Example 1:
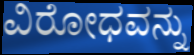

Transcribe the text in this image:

ವಿರೋಧವನ್ನು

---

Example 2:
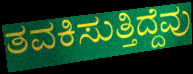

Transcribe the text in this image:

ತವಕಿಸುತ್ತಿದ್ದೆವು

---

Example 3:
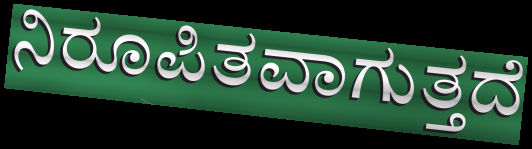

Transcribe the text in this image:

ನಿರೂಪಿತವಾಗುತ್ತದೆ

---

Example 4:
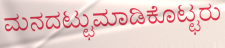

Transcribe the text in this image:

ಮನದಟ್ಟುಮಾಡಿಕೊಟ್ಟರು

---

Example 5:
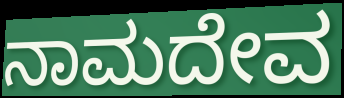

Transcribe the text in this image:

ನಾಮದೇವ